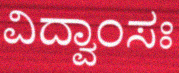
ವಿದ್ವಾಂಸಃ